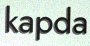
kapda